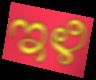
ಇಳಿ